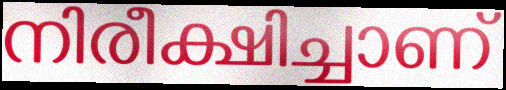
നിരീക്ഷിച്ചാണ്